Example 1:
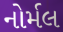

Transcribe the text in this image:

નોર્મલ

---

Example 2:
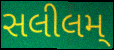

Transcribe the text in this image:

સલીલમ્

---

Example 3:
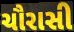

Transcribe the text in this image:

ચૌરાસી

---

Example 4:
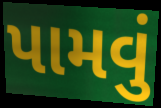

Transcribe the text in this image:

પામવું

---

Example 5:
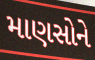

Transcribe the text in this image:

માણસોને